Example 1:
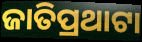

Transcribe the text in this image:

ଜାତିପ୍ରଥାଟା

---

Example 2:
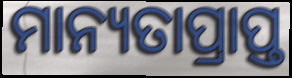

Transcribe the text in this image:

ମାନ୍ୟତାପ୍ରାପ୍ତ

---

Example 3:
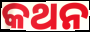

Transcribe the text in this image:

କଥନ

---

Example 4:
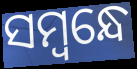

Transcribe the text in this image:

ସମ୍ବନ୍ଧେ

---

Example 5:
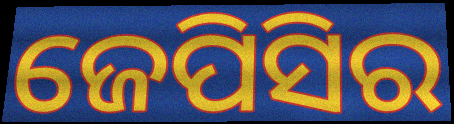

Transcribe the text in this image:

ଜେପିସିର